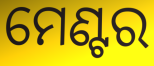
ମେଣ୍ଟର